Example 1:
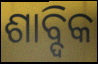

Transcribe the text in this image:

ଶାବ୍ଦିକ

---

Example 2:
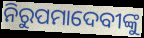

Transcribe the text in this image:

ନିରୁପମାଦେବୀଙ୍କୁ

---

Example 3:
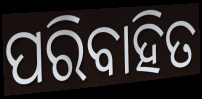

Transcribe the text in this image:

ପରିବାହିତ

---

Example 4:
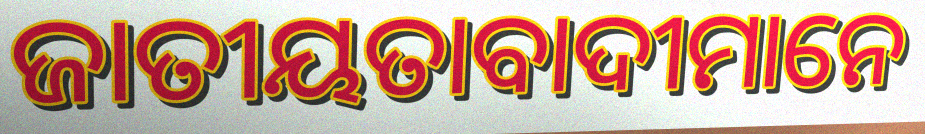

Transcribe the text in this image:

ଜାତୀୟତାବାଦୀମାନେ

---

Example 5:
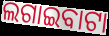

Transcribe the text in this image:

ଲଗାଇବାଟା